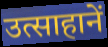
उत्साहानें